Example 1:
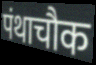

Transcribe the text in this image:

पंथाचौक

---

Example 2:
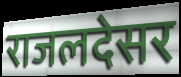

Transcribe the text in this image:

राजलदेसर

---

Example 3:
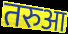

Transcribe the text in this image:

तरुआ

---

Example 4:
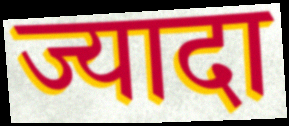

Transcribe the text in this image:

ज्‍यादा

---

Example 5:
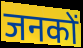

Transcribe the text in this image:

जनकों